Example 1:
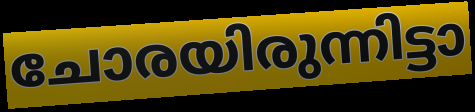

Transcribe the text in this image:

ചോരയിരുന്നിട്ടാ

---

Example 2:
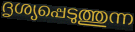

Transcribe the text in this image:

ദൃശ്യപ്പെടുത്തുന്ന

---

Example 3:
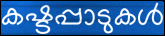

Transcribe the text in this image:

കഷ്ടപ്പാടുകൾ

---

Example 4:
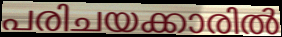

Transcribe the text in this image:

പരിചയക്കാരിൽ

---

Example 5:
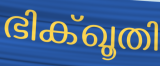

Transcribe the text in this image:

ഭിക്ഖൂതി